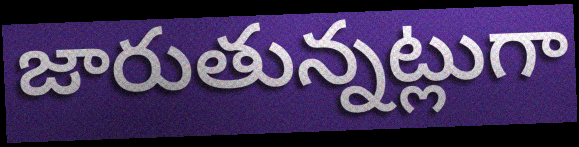
జారుతున్నట్లుగా